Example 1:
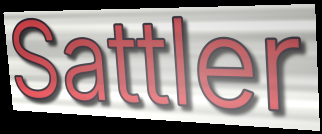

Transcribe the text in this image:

Sattler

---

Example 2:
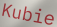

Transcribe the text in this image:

Kubie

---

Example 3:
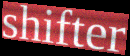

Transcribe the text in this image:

shifter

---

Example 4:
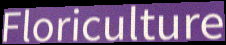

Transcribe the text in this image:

Floriculture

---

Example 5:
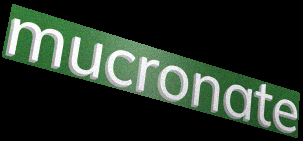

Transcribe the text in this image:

mucronate